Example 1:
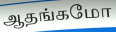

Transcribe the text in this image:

ஆதங்கமோ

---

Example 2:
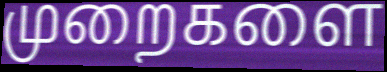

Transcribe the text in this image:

முறைகளை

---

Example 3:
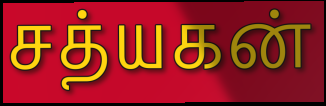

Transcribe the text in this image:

சத்யகன்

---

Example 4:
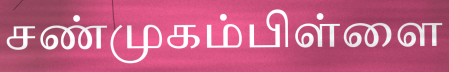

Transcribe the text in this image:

சண்முகம்பிள்ளை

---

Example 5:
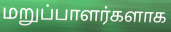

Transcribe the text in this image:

மறுப்பாளர்களாக